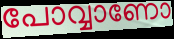
പോവ്വാണോ